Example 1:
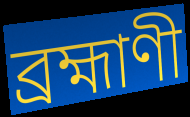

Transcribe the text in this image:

ব্রহ্মাণী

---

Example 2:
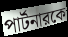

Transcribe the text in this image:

পার্টনারকে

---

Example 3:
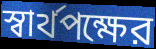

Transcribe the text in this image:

স্বার্থপক্ষের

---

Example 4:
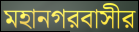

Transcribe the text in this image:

মহানগরবাসীর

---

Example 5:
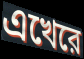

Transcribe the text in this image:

এখেরে